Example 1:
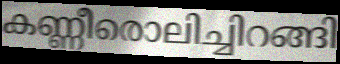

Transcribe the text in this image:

കണ്ണീരൊലിച്ചിറങ്ങി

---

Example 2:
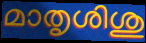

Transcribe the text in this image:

മാതൃശിശു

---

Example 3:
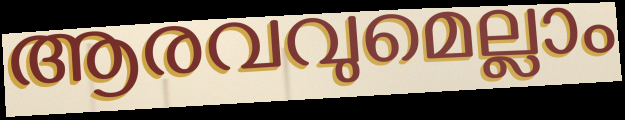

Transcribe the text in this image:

ആരവവുമെല്ലാം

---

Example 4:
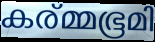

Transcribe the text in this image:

കര്മ്മഭൂമി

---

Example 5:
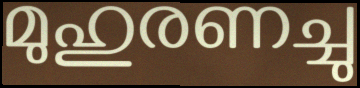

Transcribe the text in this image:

മുഹുരണച്ചു